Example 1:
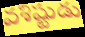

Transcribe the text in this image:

వశిష్టుడు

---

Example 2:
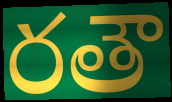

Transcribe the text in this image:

రతౌ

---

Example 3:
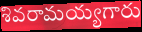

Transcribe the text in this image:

శివరామయ్యగారు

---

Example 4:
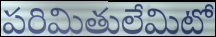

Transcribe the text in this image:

పరిమితులేమిటో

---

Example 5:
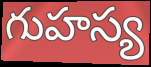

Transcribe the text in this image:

గుహస్య